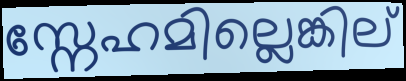
സ്നേഹമില്ലെങ്കില്